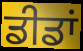
ਡੀਡਾਂ